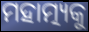
ମହାତ୍ମ୍ୟକୁ